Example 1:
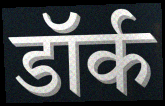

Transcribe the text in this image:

डॉर्क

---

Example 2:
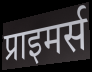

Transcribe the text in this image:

प्राइमर्स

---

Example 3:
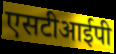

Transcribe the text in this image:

एसटीआईपी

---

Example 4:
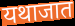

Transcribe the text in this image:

यथाजात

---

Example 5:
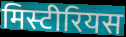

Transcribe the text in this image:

मिस्टीरियस